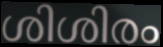
ശിശിരം